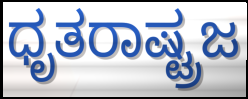
ಧೃತರಾಷ್ಟ್ರಜ